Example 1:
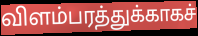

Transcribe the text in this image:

விளம்பரத்துக்காகச்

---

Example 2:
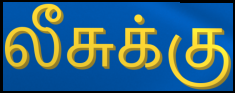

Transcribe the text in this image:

லீசுக்கு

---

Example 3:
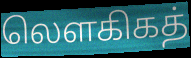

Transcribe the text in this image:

லௌகிகத்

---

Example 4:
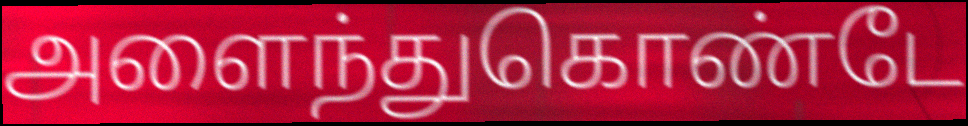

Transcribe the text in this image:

அளைந்துகொண்டே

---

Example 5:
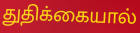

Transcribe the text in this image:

துதிக்கையால்